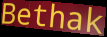
Bethak